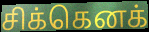
சிக்கெனக்